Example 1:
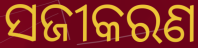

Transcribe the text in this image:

ସଜୀକରଣ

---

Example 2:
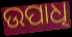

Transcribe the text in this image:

ଉପାଧି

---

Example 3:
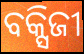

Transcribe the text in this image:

ବକ୍ସିଜୀ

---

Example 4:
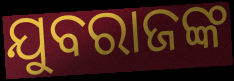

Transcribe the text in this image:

ଯୁବରାଜଙ୍କ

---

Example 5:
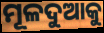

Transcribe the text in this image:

ମୂଳଦୁଆକୁ